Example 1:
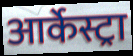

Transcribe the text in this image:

आर्केस्ट्रा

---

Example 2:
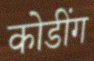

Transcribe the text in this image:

कोडींग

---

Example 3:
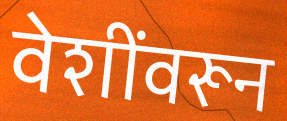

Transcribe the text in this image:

वेशींवरून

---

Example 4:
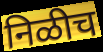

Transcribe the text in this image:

निळीच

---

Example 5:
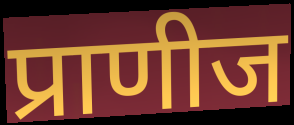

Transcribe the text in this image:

प्राणीज